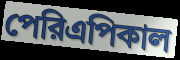
পেরিএপিকাল